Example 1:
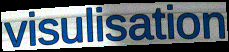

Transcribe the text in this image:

visulisation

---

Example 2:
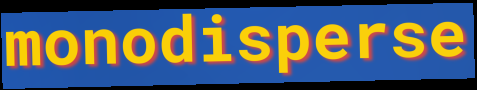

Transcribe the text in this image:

monodisperse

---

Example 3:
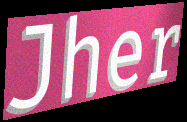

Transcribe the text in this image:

Jher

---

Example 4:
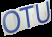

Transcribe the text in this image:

OTU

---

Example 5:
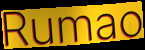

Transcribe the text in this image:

Rumao